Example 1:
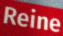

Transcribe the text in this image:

Reine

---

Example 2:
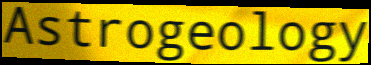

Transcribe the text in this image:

Astrogeology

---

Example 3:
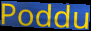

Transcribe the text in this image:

Poddu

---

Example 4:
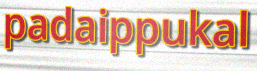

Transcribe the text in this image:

padaippukal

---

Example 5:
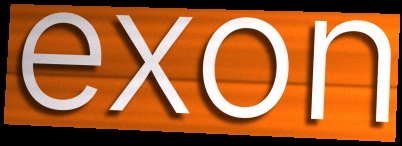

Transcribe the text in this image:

exon